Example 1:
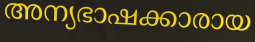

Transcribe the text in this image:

അന്യഭാഷക്കാരായ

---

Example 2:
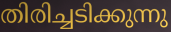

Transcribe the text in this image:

തിരിച്ചടിക്കുന്നു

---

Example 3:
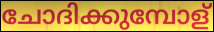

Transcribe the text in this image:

ചോദിക്കുമ്പോള്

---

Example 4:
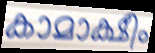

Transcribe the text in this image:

കാമാക്ഷീം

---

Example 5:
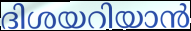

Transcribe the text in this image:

ദിശയറിയാൻ